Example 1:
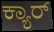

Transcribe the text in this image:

ಕ್ಯಾರ್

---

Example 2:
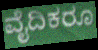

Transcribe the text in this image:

ವೈದಿಕರೂ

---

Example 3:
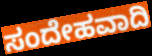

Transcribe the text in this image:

ಸಂದೇಹವಾದಿ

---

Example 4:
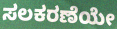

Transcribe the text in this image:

ಸಲಕರಣೆಯೇ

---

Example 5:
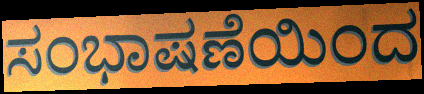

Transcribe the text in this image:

ಸಂಭಾಷಣೆಯಿಂದ